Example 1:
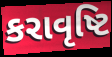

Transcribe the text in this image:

કરાવૃષ્ટિ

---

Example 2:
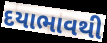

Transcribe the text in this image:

દયાભાવથી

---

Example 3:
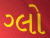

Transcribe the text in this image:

ગ્લો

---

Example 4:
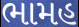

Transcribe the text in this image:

ભામહ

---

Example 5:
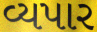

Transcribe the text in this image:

વ્યપાર